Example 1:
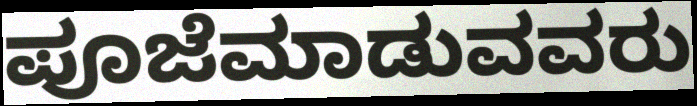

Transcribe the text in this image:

ಪೂಜೆಮಾಡುವವರು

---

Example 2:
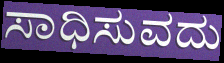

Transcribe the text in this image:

ಸಾಧಿಸುವದು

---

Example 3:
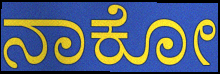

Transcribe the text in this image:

ನಾಕೋ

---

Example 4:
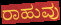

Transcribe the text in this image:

ರಾಹುವು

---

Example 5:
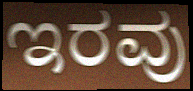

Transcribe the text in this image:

ಇರವು